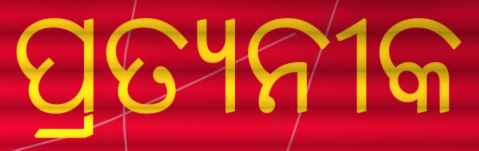
ପ୍ରତ୍ୟନୀକ